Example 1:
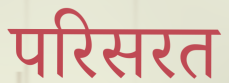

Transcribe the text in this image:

परिसरत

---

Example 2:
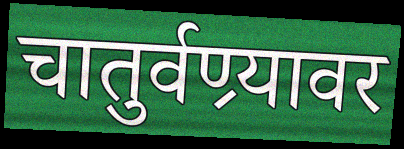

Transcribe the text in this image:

चातुर्वण्र्यावर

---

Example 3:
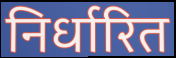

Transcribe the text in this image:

निर्धारित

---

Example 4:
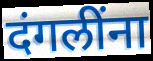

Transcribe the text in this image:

दंगलींना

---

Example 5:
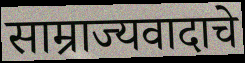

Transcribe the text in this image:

साम्राज्यवादाचे